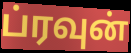
ப்ரவுன்